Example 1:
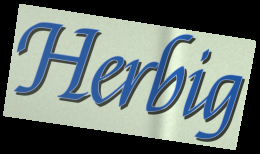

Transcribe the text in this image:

Herbig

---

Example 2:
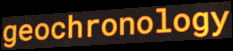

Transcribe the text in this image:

geochronology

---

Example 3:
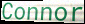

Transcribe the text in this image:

Connor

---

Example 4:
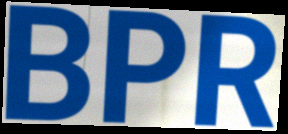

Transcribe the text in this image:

BPR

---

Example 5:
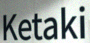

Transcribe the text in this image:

Ketaki